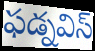
ఫడ్నవిస్